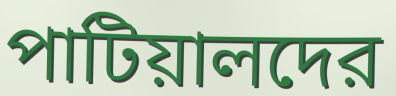
পাটিয়ালদের